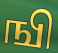
ஙி